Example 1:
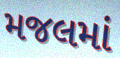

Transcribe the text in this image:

મજલમાં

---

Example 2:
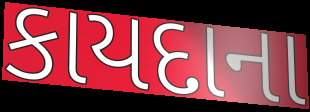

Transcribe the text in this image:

કાયદાના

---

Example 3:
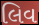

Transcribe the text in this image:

લિવ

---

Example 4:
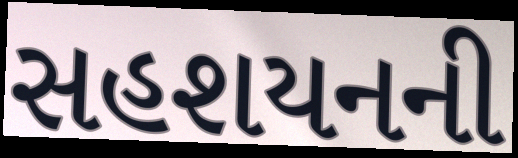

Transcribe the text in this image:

સહશયનની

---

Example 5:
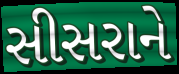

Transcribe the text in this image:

સીસરાને